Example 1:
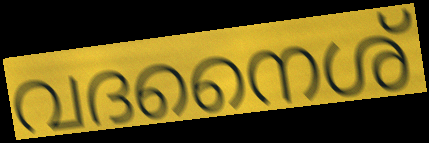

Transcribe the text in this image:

വദനൈശ്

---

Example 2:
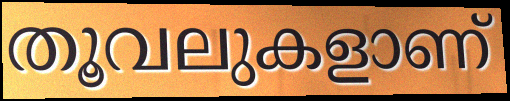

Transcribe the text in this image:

തൂവലുകളാണ്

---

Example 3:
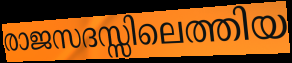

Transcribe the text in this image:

രാജസദസ്സിലെത്തിയ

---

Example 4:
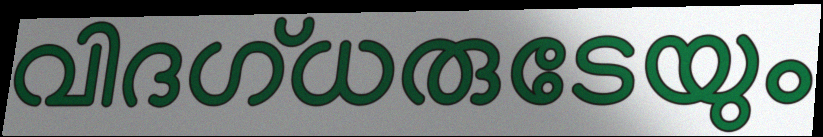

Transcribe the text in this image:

വിദഗ്ധരുടേയും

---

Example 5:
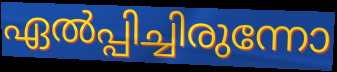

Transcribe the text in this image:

ഏൽപ്പിച്ചിരുന്നോ